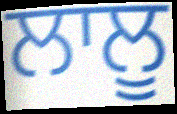
ਲਾਲੂ